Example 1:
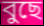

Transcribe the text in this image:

বুছে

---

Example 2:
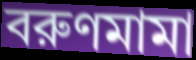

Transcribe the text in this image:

বরুণমামা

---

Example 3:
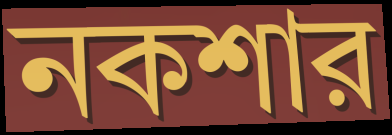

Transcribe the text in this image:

নকশার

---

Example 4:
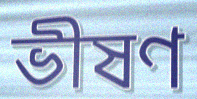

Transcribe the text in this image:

ভীষণ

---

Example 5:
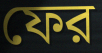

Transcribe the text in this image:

ফের